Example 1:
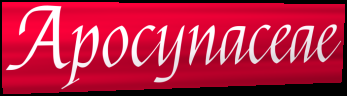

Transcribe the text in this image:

Apocynaceae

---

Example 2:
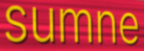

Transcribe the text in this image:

sumne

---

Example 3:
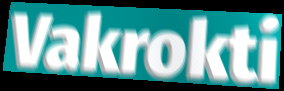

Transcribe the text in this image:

Vakrokti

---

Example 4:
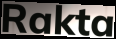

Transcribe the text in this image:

Rakta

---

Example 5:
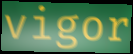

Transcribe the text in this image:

vigor